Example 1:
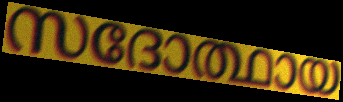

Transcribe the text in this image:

സദോത്ഥായ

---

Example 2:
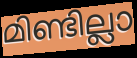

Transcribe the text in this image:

മിണ്ടില്ലാ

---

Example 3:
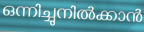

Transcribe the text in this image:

ഒന്നിച്ചുനിൽക്കാൻ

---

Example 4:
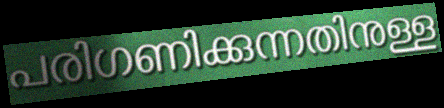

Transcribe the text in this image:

പരിഗണിക്കുന്നതിനുള്ള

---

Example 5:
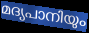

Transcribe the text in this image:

മദ്യപാനിയും